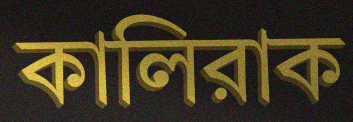
কালিরাক